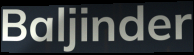
Baljinder